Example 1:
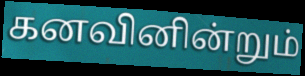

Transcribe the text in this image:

கனவினின்றும்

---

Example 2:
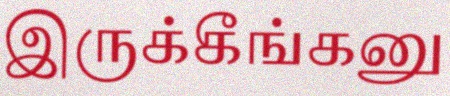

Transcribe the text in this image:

இருக்கீங்கனு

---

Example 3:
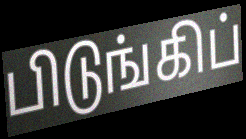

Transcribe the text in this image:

பிடுங்கிப்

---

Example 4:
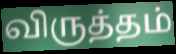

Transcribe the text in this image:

விருத்தம்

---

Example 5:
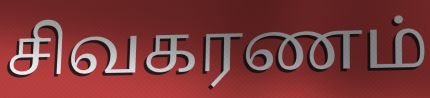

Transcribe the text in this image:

சிவகரணம்